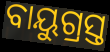
ବାୟୁଗ୍ରସ୍ତ